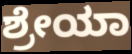
ಶ್ರೇಯಾ